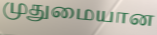
முதுமையான